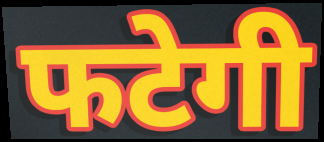
फटेगी